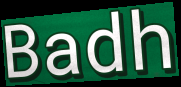
Badh